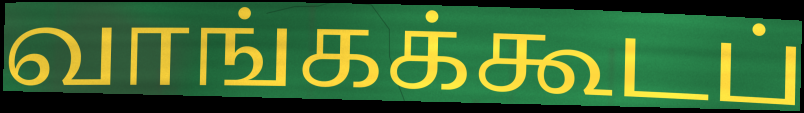
வாங்கக்கூடப்